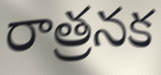
రాత్రనక